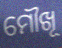
ମୌଖୂ